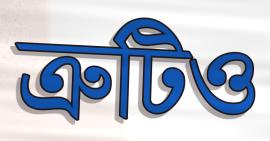
ত্রুটিও